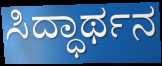
ಸಿದ್ಧಾರ್ಥನ